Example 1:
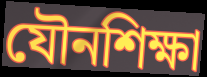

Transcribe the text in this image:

যৌনশিক্ষা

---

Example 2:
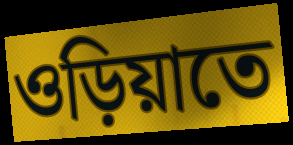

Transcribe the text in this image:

ওড়িয়াতে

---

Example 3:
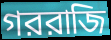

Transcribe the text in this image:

গররাজি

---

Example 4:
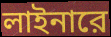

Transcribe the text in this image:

লাইনারে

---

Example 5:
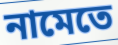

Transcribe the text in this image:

নামেতে